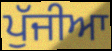
ਪੁੱਜੀਆ